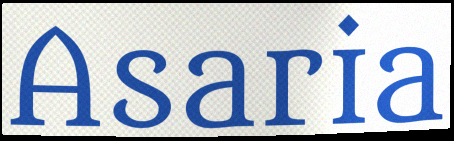
Asaria